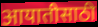
आयातीसाठी